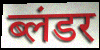
ब्लंडर